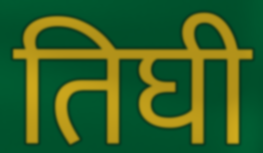
तिघी